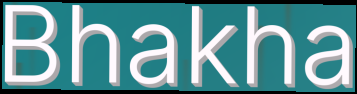
Bhakha